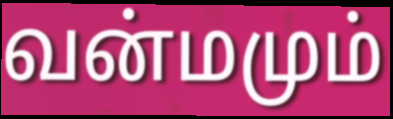
வன்மமும்